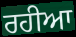
ਰਹੀਆ